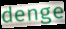
denge